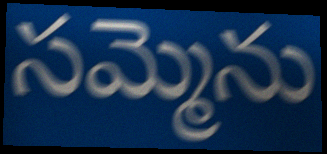
సమ్మెను